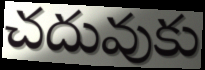
చదువుకు